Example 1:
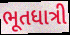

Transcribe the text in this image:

ભૂતધાત્રી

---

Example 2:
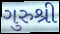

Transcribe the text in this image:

ગુરુશ્રી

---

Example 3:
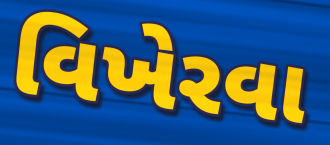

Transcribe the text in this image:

વિખેરવા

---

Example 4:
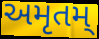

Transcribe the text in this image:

અમૃતમ્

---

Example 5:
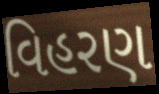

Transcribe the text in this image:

વિહરણ